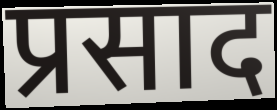
प्रसाद